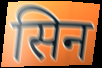
सिन